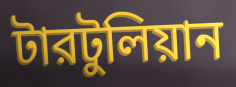
টারটুলিয়ান